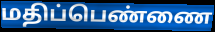
மதிப்பெண்ணை